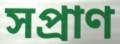
সপ্রাণ